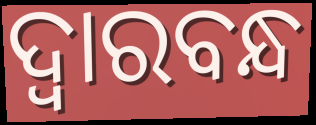
ଦ୍ବାରବନ୍ଧ